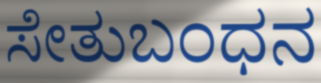
ಸೇತುಬಂಧನ